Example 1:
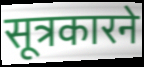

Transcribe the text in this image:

सूत्रकारने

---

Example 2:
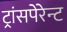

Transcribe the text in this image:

ट्रांसपेरेन्ट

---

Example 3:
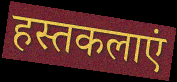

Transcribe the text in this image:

हस्तकलाएं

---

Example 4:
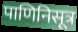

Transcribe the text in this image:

पाणिनिसूत्र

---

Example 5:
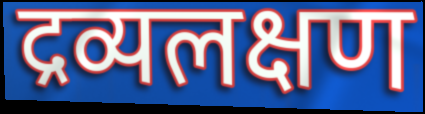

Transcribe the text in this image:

द्रव्यलक्षण